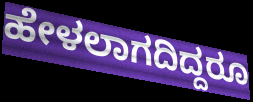
ಹೇಳಲಾಗದಿದ್ದರೂ